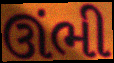
ઊંભી